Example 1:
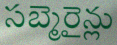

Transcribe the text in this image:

సబ్మెరైన్లు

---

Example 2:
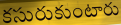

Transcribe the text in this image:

కసురుకుంటారు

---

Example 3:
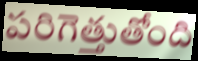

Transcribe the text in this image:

పరిగెత్తుతోంది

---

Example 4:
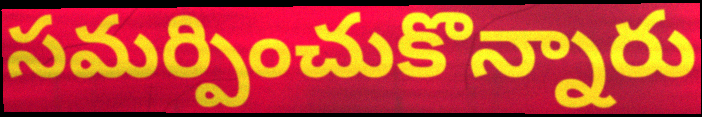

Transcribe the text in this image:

సమర్పించుకొన్నారు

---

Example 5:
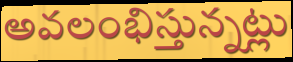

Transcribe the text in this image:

అవలంభిస్తున్నట్లు